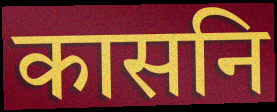
कासनि